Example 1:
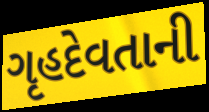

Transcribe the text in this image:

ગૃહદેવતાની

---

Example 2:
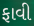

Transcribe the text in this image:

ફાવી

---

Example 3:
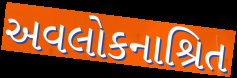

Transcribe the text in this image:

અવલોકનાશ્રિત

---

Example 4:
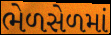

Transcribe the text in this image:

ભેળસેળમાં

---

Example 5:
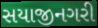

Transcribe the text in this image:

સયાજીનગરી